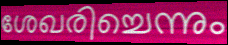
ശേഖരിച്ചെന്നും